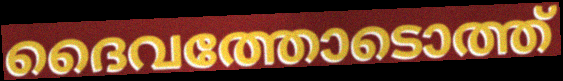
ദൈവത്തോടൊത്ത്